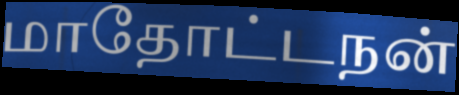
மாதோட்டநன்